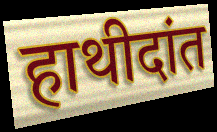
हाथीदांत